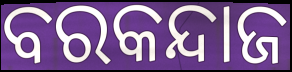
ବରକନ୍ଦାଜ